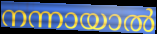
നന്നായാൽ